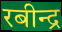
रबीन्द्र